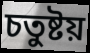
চতুষ্টয়